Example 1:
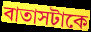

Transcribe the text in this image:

বাতাসটাকে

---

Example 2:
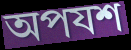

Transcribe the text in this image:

অপযশ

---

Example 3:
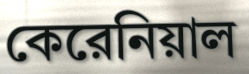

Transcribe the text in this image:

কেরেনিয়াল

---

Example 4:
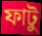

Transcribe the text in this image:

ফাটু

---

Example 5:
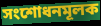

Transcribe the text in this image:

সংশোধনমূলক